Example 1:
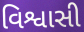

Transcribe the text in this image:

વિશ્વાસી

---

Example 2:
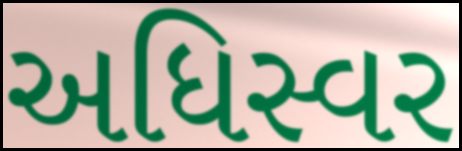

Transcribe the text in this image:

અધિસ્વર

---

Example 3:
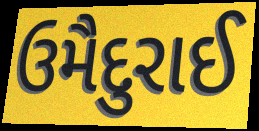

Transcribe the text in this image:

ઉમૈદુરાઈ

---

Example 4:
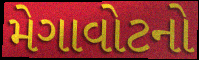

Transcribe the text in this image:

મેગાવોટનો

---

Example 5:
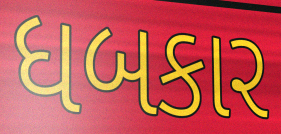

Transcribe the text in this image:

ધબકાર